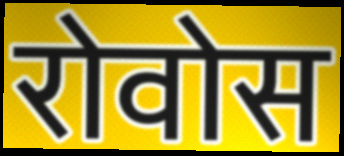
रोवोस